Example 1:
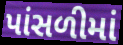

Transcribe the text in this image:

પાંસળીમાં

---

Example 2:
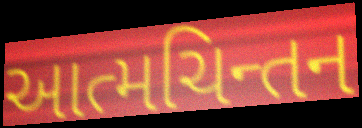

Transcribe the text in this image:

આત્મચિન્તન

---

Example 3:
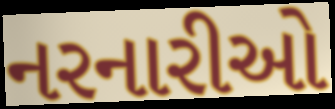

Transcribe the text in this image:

નરનારીઓ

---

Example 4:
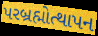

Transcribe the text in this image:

પરબ્રહ્મોત્થાપન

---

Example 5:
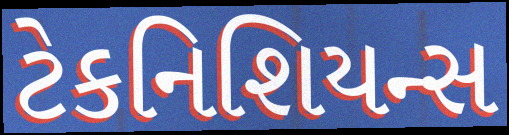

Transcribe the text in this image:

ટેકનિશિયન્સ